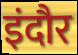
इंदौर